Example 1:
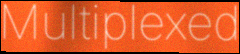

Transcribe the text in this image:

Multiplexed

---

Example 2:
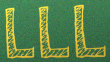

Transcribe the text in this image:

LLL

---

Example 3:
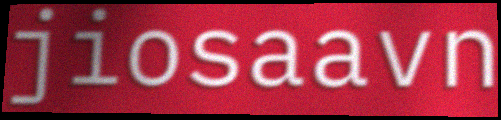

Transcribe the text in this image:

jiosaavn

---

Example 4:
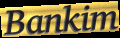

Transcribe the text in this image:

Bankim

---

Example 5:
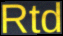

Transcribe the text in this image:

Rtd